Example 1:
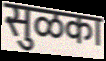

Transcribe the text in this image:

सुळका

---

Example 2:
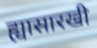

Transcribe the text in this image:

ह्यासारखी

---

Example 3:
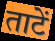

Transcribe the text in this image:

ताटें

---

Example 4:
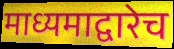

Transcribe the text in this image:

माध्यमाद्वारेच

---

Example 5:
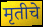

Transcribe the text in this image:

मृतीचे